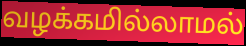
வழக்கமில்லாமல்